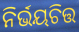
ନିର୍ଭୟଚିତ୍ତ